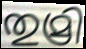
തുമ്രി